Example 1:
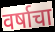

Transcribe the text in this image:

वर्षाचा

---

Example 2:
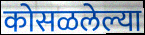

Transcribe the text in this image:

कोसळलेल्या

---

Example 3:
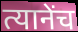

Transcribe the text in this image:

त्यानेंच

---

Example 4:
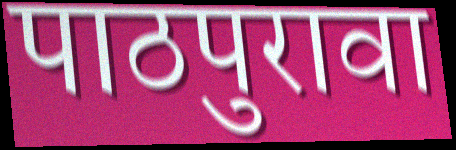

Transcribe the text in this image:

पाठपुरावा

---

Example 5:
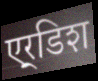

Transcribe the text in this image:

एर्डिश